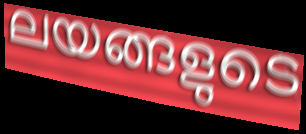
ലയങ്ങളുടെ